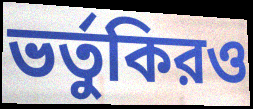
ভর্তুকিরও